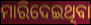
ମାରିଦେଇଥିବା